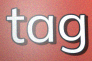
tag